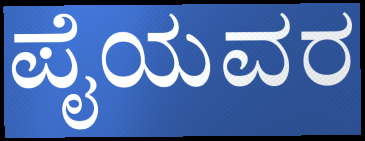
ಪೈಯವರ